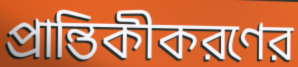
প্রান্তিকীকরণের